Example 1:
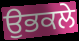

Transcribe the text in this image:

ਉਭਕਲੇ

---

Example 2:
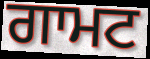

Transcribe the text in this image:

ਗਾਮਟ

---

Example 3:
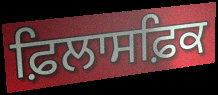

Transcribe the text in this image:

ਫ਼ਿਲਾਸਫ਼ਿਕ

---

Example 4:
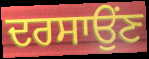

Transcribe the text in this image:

ਦਰਸਾਉਂਣ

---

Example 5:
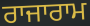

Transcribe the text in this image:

ਰਾਜਾਰਾਮ